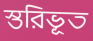
স্তরিভূত